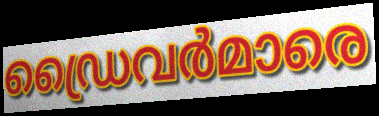
ഡ്രൈവർമാരെ